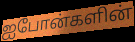
ஐபோன்களின்